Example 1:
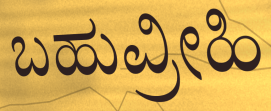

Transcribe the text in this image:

ಬಹುವ್ರೀಹಿ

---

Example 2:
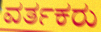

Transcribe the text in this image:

ವರ್ತಕರು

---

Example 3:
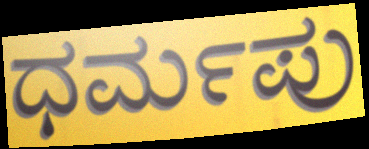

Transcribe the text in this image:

ಧರ್ಮಪು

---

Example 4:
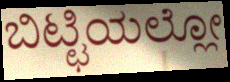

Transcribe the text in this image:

ಬಿಟ್ಟಿಯಲ್ಲೋ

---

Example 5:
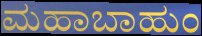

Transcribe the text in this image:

ಮಹಾಬಾಹುಂ